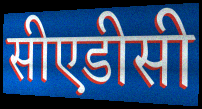
सीएडीसी